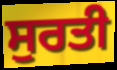
ਸੁਰਤੀ